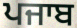
ਪਜਾਬ